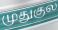
முதுகுல